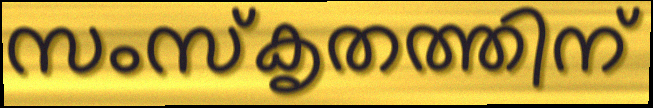
സംസ്കൃതത്തിന്